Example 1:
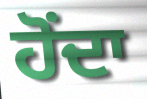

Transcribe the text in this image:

ਹੋਂਦਾ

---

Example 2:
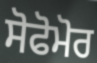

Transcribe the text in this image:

ਸੋਫੋਮੋਰ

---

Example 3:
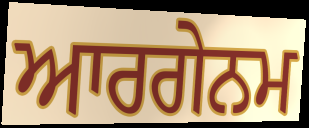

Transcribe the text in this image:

ਆਰਗੇਨਮ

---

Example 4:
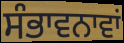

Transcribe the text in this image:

ਸੰਭਾਵਨਾਵਾਂ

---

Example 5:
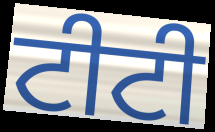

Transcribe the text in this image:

ਟੀਟੀ